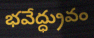
భవేద్ధ్రువం